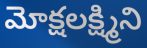
మోక్షలక్ష్మిని